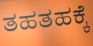
ತಹತಹಕ್ಕೆ